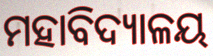
ମହାବିଦ୍ୟାଳୟ